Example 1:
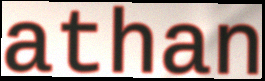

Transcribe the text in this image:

athan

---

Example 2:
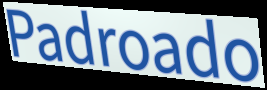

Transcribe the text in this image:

Padroado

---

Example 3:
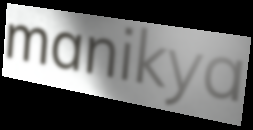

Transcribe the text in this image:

manikya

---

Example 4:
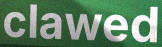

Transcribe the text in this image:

clawed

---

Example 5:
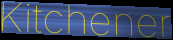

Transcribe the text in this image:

Kitchener